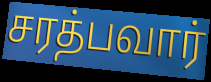
சரத்பவார்